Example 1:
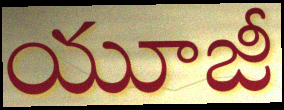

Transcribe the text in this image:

యూజీ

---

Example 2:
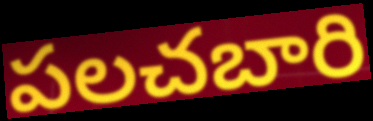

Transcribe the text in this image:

పలచబారి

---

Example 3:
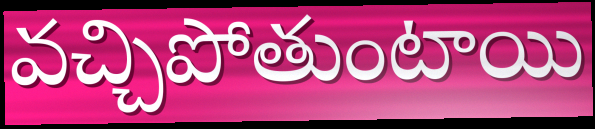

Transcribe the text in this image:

వచ్చిపోతుంటాయి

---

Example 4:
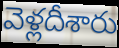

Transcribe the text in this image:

వెళ్లదీశారు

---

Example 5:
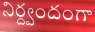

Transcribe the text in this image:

నిర్ద్వందంగా